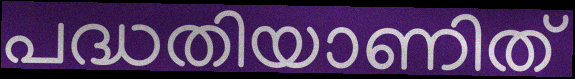
പദ്ധതിയാണിത്